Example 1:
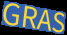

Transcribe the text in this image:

GRAS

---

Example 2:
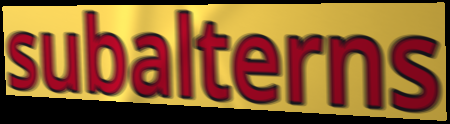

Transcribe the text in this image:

subalterns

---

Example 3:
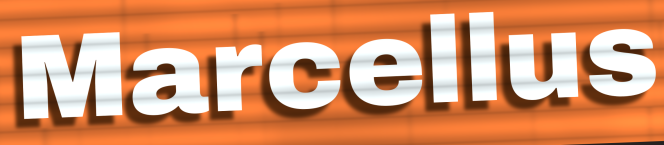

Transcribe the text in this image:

Marcellus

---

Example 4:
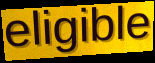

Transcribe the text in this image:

eligible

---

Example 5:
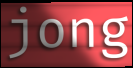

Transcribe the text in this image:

jong